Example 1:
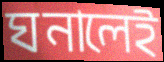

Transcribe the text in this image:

ঘনালেই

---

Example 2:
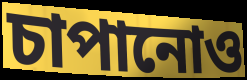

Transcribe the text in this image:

চাপানোও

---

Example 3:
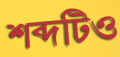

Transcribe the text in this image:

শব্দটিও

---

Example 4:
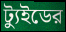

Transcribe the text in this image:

ট্যুইডের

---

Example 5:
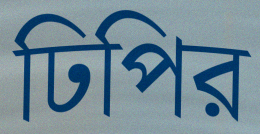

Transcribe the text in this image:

ঢিপির